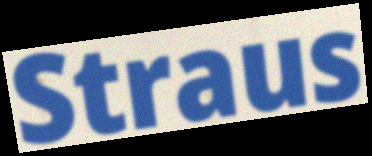
Straus